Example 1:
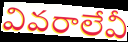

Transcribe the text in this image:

వివరాలేవీ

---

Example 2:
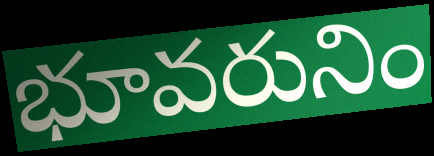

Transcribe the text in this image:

భూవరునిం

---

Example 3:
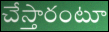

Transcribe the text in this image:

చేస్తారంటూ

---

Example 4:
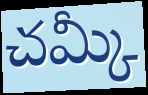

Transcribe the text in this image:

చమ్కీ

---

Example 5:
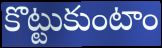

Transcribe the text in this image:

కొట్టుకుంటాం